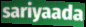
sariyaada